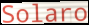
Solaro